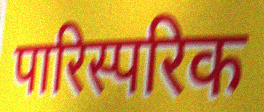
पारिस्परिक